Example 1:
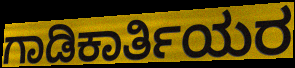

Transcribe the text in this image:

ಗಾಡಿಕಾರ್ತಿಯರ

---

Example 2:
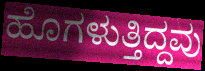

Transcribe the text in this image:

ಹೊಗಳುತ್ತಿದ್ದವು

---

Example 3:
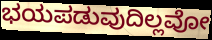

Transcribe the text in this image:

ಭಯಪಡುವುದಿಲ್ಲವೋ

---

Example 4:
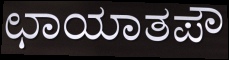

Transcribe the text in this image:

ಛಾಯಾತಪೌ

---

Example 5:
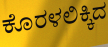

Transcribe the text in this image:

ಕೊರಳಲಿಕ್ಕಿದ